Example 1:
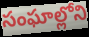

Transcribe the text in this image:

సంఘాల్లోని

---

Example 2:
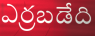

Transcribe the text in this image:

ఎర్రబడేది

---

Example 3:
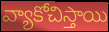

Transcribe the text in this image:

వ్యాకోచిస్తాయి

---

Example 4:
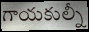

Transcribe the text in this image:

గాయకుల్నీ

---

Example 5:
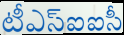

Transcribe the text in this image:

టీఎస్ఐఐసీ